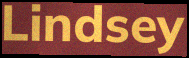
Lindsey